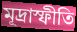
মূদ্রাস্ফীতি